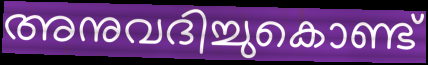
അനുവദിച്ചുകൊണ്ട്